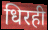
धिरही